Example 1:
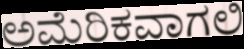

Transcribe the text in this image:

ಅಮೆರಿಕವಾಗಲಿ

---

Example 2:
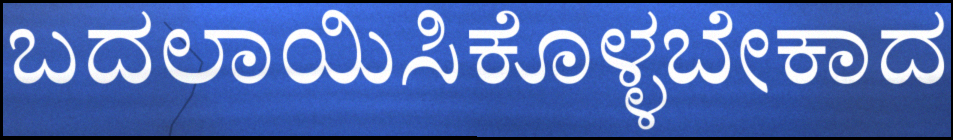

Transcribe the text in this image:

ಬದಲಾಯಿಸಿಕೊಳ್ಳಬೇಕಾದ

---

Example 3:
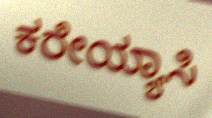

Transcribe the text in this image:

ಕರೇಯ್ಯಾಸಿ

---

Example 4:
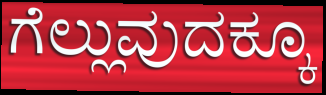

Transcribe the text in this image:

ಗೆಲ್ಲುವುದಕ್ಕೂ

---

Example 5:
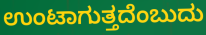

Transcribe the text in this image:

ಉಂಟಾಗುತ್ತದೆಂಬುದು